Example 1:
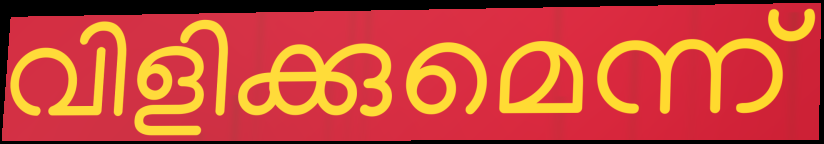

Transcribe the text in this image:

വിളിക്കുമെന്ന്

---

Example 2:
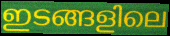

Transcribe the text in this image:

ഇടങ്ങളിലെ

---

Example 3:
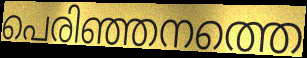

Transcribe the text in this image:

പെരിഞ്ഞനത്തെ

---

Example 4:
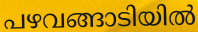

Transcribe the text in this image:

പഴവങ്ങാടിയിൽ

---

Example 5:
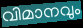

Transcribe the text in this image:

വിമാനവും